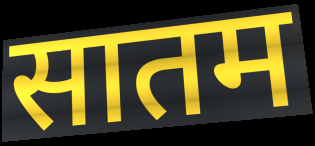
सातम